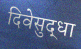
दिवेसुद्धा